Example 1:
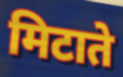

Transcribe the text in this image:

मिटाते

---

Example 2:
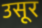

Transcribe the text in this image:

उसूर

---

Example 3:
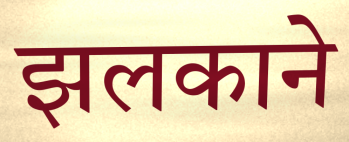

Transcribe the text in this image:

झलकाने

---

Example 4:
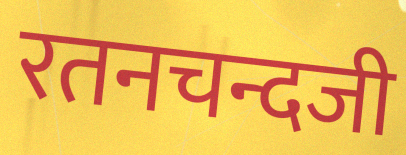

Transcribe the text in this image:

रतनचन्दजी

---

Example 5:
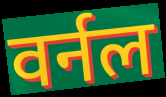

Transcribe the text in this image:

वर्नल